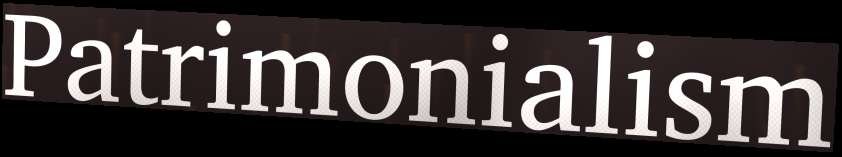
Patrimonialism